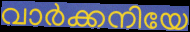
വാർക്കനിയേ